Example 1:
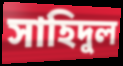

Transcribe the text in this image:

সাহিদুল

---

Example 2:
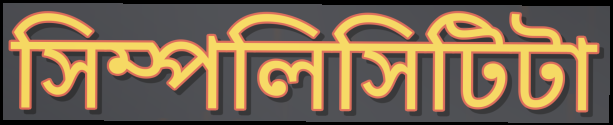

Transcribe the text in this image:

সিম্পলিসিটিটা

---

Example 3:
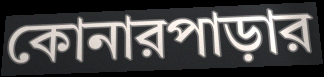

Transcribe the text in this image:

কোনারপাড়ার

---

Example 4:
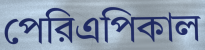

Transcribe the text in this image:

পেরিএপিকাল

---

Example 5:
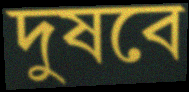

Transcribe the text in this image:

দুষবে